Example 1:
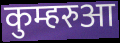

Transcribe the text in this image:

कुम्हरुआ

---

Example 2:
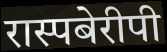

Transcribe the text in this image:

रास्पबेरीपी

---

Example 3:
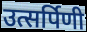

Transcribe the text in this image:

उत्सर्पिणी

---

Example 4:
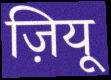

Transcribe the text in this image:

ज़ियू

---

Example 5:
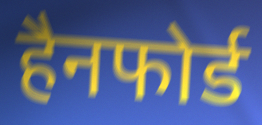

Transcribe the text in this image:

हैनफोर्ड